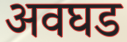
अवघड